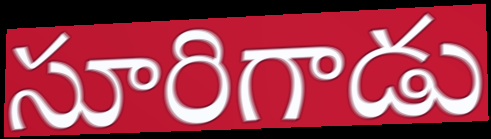
సూరిగాడు